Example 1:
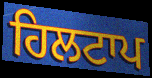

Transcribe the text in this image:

ਹਿਲਟਾਪ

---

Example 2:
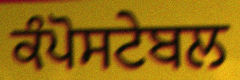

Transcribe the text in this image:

ਕੰਪੋਸਟੇਬਲ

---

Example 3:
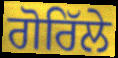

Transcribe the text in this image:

ਗੋਰਿੱਲੇ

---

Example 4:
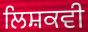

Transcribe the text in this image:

ਲਿਸ਼ਕਵੀ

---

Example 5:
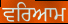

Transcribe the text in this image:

ਵਰਿਆਮ